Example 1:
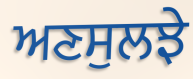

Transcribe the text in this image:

ਅਣਸੁਲਝੇ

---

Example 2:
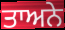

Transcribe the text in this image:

ਤਾਅਨੇ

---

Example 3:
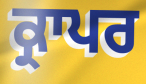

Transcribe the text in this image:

ਕ੍ਰਾਪਰ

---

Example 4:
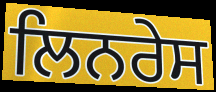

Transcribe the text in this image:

ਲਿਨਰੇਸ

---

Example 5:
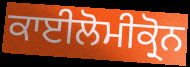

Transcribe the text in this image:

ਕਾਈਲੋਮੀਕ੍ਰੋਨ